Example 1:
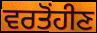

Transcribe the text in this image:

ਵਰਤੋਂਹੀਣ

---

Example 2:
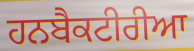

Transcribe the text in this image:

ਹਨਬੈਕਟੀਰੀਆ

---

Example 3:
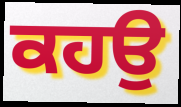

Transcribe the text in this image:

ਕਹਉ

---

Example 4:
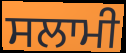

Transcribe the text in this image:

ਸਲਾਮੀ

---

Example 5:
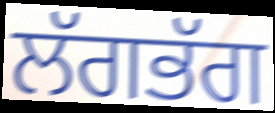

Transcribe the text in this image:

ਲੱਗਭੱਗ